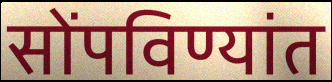
सोंपविण्यांत